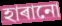
হাৰানো